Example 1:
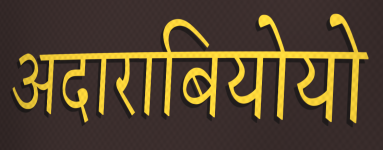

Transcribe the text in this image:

अदाराबियोयो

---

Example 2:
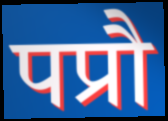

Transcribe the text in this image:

पप्रौ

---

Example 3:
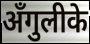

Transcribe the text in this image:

अँगुलीके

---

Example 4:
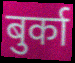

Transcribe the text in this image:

बुर्का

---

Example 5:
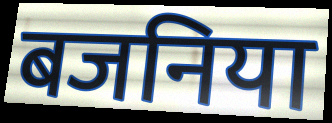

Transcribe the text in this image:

बजनिया